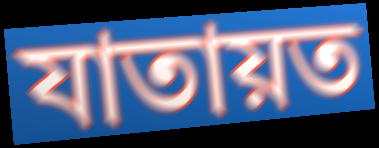
যাতায়ত